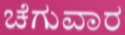
ಚೆಗುವಾರ